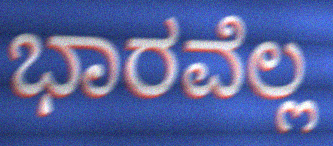
ಭಾರವೆಲ್ಲ